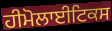
ਹੀਮੋਲਾਈਟਿਕਸ